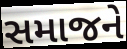
સમાજને